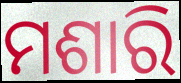
ମଶାରି